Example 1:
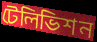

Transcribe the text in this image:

টেলিভিশন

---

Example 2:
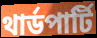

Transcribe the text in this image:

থার্ডপার্টি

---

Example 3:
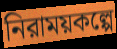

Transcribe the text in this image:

নিরাময়কল্পে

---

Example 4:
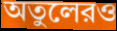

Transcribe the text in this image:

অতুলেরও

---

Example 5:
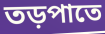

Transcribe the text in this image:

তড়পাতে